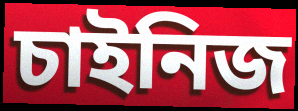
চাইনিজ